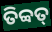
ତିବ୍ବତ୍